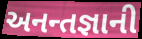
અનન્તજ્ઞાની